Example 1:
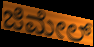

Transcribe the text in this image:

ಜಿಮೇಲ್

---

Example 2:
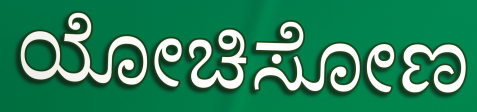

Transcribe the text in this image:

ಯೋಚಿಸೋಣ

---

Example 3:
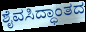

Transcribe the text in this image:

ಶೈವಸಿದ್ಧಾಂತದ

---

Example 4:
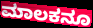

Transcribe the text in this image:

ಮಾಲಕನೂ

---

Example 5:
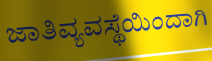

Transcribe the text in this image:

ಜಾತಿವ್ಯವಸ್ಥೆಯಿಂದಾಗಿ